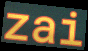
zai